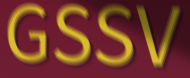
GSSV